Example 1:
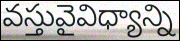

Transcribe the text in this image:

వస్తువైవిధ్యాన్ని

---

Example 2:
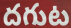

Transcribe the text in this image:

దగుట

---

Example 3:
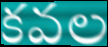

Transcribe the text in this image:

కవల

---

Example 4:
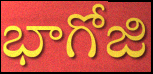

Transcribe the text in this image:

భాగోజి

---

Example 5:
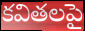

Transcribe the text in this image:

కవితలపై